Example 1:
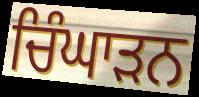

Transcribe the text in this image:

ਚਿੰਘਾੜਨ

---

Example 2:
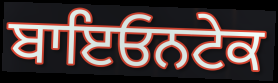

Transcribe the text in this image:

ਬਾਇਓਨਟੇਕ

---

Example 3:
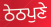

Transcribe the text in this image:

ਠੇਠਪੁਣੇ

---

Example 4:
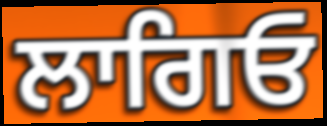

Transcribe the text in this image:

ਲਾਗਿਓ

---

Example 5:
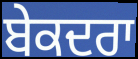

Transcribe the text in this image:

ਬੇਕਦਰਾ